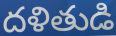
దళితుడి